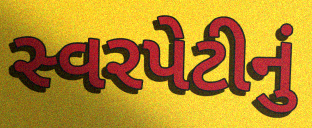
સ્વરપેટીનું